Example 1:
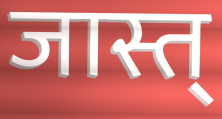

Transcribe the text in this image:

जास्त्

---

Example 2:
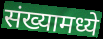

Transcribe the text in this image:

संख्यामध्ये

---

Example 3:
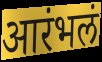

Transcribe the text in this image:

आरंभलं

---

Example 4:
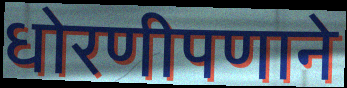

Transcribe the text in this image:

धोरणीपणाने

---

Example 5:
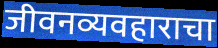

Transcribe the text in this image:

जीवनव्यवहाराचा